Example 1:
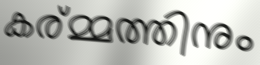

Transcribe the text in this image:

കര്മ്മത്തിനും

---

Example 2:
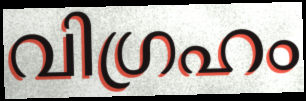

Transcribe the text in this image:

വിഗ്രഹം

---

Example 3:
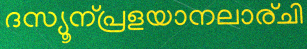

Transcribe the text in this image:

ദസ്യൂന്പ്രളയാനലാര്ചി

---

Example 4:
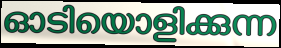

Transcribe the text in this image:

ഓടിയൊളിക്കുന്ന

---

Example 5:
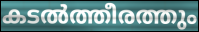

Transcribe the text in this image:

കടൽത്തീരത്തും